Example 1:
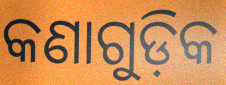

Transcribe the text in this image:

କଣାଗୁଡ଼ିକ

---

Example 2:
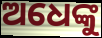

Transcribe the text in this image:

ଅଧେଙ୍କୁ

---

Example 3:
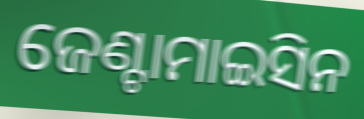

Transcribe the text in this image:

ଜେଣ୍ଟାମାଇସିନ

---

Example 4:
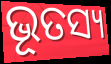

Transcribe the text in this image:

ଭୂତସ୍ୟ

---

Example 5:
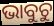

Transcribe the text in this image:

ଭାବୁଚୁ